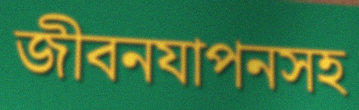
জীবনযাপনসহ